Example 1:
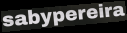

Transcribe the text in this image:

sabypereira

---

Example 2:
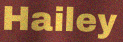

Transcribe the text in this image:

Hailey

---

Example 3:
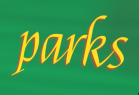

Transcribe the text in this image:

parks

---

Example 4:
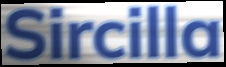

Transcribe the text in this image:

Sircilla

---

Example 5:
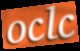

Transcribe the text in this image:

oclc